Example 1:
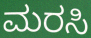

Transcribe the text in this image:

ಮರಸಿ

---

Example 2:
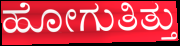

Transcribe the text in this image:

ಹೋಗುತಿತ್ತು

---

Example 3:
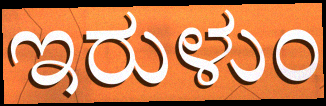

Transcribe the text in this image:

ಇರುಳುಂ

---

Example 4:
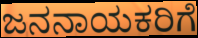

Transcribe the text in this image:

ಜನನಾಯಕರಿಗೆ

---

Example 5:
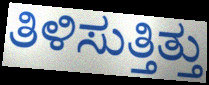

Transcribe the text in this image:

ತಿಳಿಸುತ್ತಿತ್ತು